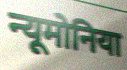
न्यूमोनिया